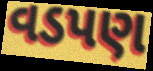
વડપણ